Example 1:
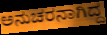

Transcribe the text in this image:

ಅನುಚರನಾಗಿದ್ದ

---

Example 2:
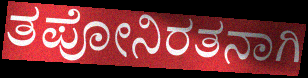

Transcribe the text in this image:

ತಪೋನಿರತನಾಗಿ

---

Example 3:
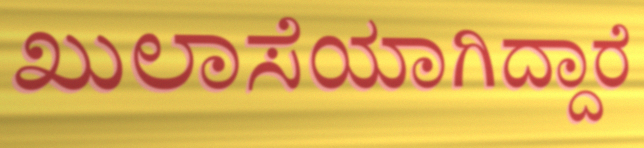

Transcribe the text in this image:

ಖುಲಾಸೆಯಾಗಿದ್ದಾರೆ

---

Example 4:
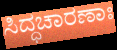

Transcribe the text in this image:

ಸಿದ್ಧಚಾರಣಾಃ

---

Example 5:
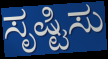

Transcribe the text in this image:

ಸೃಷ್ಟಿಸು